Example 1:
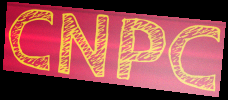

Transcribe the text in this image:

CNPC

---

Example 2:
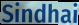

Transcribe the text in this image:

Sindhai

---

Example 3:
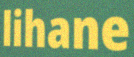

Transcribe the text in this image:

lihane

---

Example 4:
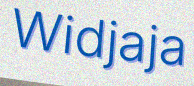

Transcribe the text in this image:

Widjaja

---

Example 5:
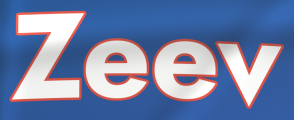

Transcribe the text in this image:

Zeev